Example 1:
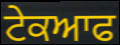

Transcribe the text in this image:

ਟੇਕਆਫ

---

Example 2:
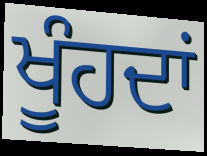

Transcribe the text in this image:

ਖੂੰਹਦਾਂ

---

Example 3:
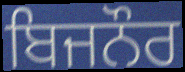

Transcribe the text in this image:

ਬਿਜਨੌਰ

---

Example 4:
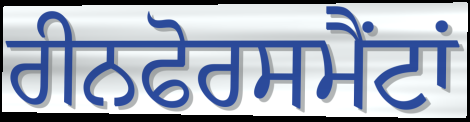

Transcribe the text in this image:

ਰੀਨਫੋਰਸਮੈਂਟਾਂ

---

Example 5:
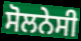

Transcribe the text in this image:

ਸੋਲਨੇਸੀ